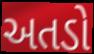
અતડો